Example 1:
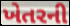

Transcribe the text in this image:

ખેતરની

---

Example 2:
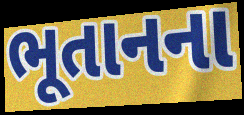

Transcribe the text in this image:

ભૂતાનના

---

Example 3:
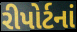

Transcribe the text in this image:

રીપોર્ટનાં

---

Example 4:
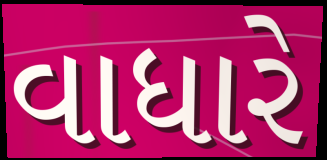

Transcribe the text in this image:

વાધારે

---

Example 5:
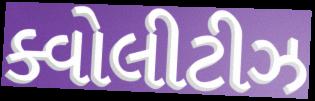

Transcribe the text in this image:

ક્વોલીટીઝ